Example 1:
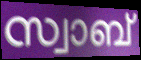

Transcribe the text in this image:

സ്വാബ്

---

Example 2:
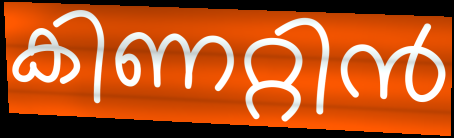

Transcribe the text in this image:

കിണറ്റിൻ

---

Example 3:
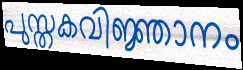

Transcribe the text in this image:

പുസ്തകവിജ്ഞാനം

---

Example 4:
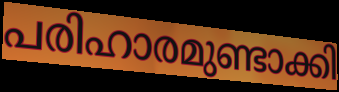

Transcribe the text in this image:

പരിഹാരമുണ്ടാക്കി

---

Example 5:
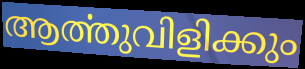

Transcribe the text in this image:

ആൎത്തുവിളിക്കും